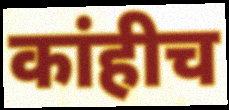
कांहीच